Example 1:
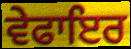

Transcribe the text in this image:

ਵੇਫਾਇਰ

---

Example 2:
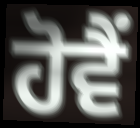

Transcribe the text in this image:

ਹੋਵੈਂ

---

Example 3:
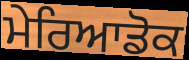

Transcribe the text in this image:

ਮੇਰਿਆਡੋਕ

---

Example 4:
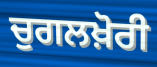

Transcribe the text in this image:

ਚੁਗਲਖ਼ੋਰੀ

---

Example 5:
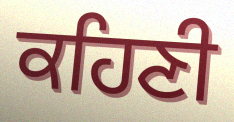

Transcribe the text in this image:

ਕਹਿਣੀ